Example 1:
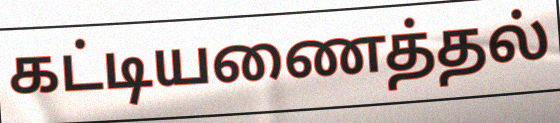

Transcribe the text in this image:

கட்டியணைத்தல்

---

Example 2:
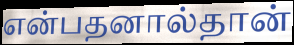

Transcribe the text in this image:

என்பதனால்தான்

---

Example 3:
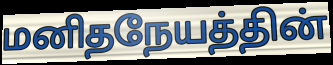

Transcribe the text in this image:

மனிதநேயத்தின்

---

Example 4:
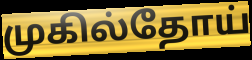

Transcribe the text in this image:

முகில்தோய்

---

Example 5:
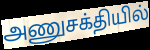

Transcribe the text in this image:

அணுசக்தியில்